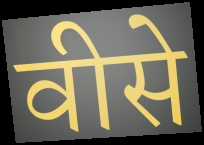
वीसे